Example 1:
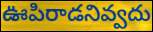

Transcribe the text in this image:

ఊపిరాడనివ్వదు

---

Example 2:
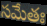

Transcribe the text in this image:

సమేతః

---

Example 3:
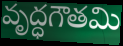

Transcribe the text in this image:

వృద్ధగౌతమి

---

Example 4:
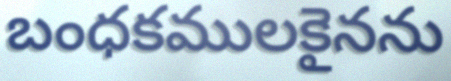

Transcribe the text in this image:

బంధకములకైనను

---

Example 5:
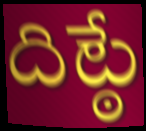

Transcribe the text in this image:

దిట్ఠే